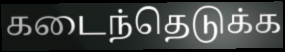
கடைந்தெடுக்க